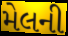
મેલની